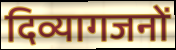
दिव्यागजनों